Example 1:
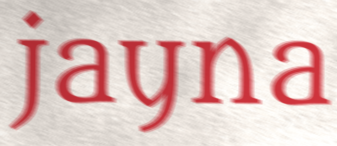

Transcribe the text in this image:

jayna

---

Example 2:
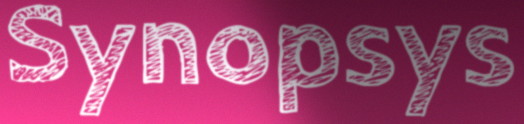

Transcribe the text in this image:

Synopsys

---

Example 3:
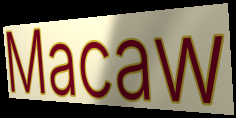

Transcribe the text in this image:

Macaw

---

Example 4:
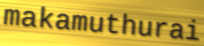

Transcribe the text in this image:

makamuthurai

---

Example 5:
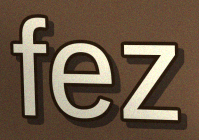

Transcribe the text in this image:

fez